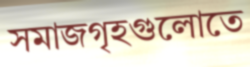
সমাজগৃহগুলোতে